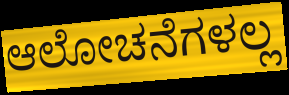
ಆಲೋಚನೆಗಳಲ್ಲ